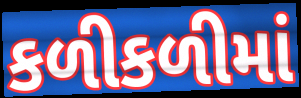
કળીકળીમાં